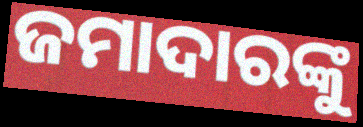
ଜମାଦାରଙ୍କୁ